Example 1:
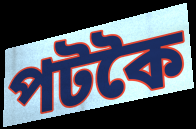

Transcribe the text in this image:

পটকৈ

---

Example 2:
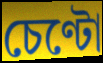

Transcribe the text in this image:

চেণ্টো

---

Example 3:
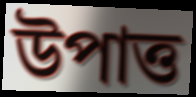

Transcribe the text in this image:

উপাত্ত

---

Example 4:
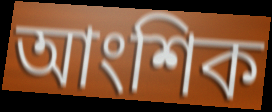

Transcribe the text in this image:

আংশিক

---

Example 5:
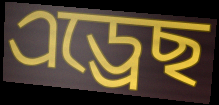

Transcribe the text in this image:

এড্ৰেছ